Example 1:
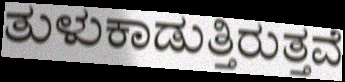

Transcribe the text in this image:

ತುಳುಕಾಡುತ್ತಿರುತ್ತವೆ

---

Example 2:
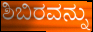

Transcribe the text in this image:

ಶಿಬಿರವನ್ನು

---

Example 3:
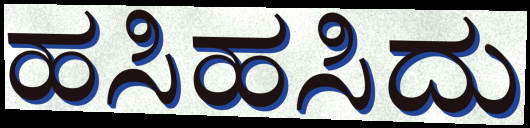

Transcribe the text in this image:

ಹಸಿಹಸಿದು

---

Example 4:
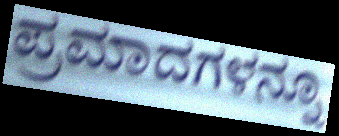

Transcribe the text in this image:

ಪ್ರಮಾದಗಳನ್ನೂ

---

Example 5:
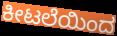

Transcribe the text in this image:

ಕೀಟಲೆಯಿಂದ